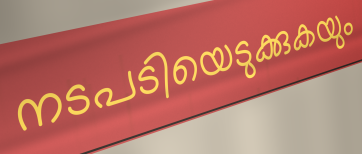
നടപടിയെടുക്കുകയും